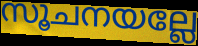
സൂചനയല്ലേ